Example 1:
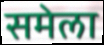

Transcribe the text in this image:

समेला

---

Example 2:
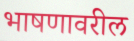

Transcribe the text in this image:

भाषणावरील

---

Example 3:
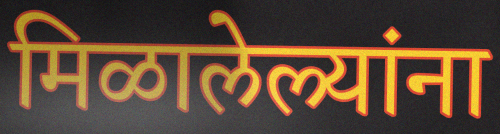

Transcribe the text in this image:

मिळालेल्यांना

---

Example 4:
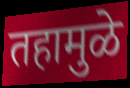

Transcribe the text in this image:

तहामुळे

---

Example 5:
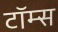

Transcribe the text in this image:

टॉम्स